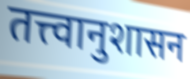
तत्त्वानुशासन